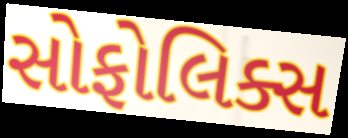
સોફોલિક્સ